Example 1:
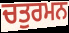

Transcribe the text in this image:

ਚਤੁਰਮਨ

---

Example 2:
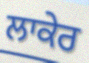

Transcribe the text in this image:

ਲਾਕੇਰ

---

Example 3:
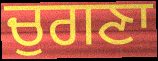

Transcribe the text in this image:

ਚੁਗਣਾ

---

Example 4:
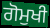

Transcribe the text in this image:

ਗੋਮੁਖੀ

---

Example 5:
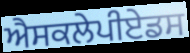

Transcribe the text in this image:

ਐਸਕਲੇਪੀਏਡਸ